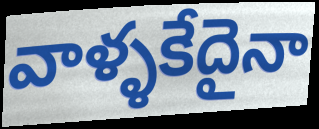
వాళ్ళకేదైనా